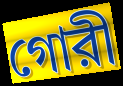
গোরী